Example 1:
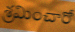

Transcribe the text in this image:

శ్రమించారో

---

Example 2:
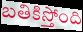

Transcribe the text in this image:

బతికిస్తోంది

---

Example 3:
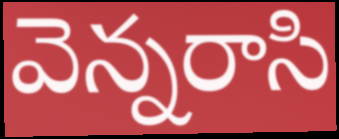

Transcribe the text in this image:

వెన్నరాసి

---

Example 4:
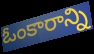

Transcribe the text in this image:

ఓంకారాన్ని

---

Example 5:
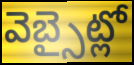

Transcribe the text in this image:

వెబ్సైట్లో